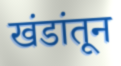
खंडांतून